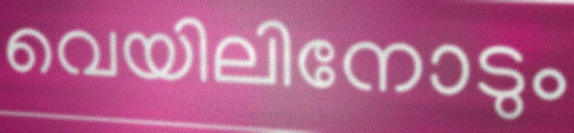
വെയിലിനോടും